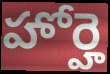
హోర్హె